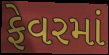
ફેવરમાં